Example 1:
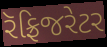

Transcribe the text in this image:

રૅફ્રિજરેટર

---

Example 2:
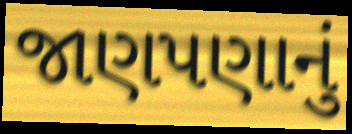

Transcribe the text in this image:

જાણપણાનું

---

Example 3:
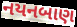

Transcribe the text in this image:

નયનબાણ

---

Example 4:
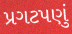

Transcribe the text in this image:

પ્રગટપણું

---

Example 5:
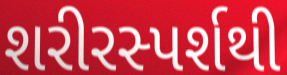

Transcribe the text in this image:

શરીરસ્પર્શથી